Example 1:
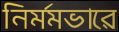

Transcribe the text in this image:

নিৰ্মমভাৱে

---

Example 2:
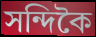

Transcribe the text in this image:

সন্দিকৈ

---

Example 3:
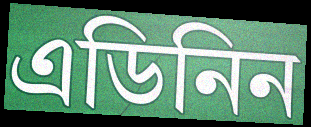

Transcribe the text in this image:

এডিনিন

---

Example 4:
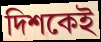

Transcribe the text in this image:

দিশকেই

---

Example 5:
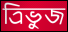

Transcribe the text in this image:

ত্ৰিভুজ